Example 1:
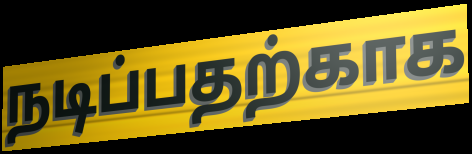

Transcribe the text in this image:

நடிப்பதற்காக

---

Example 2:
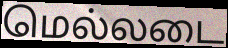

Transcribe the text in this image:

மெல்லடை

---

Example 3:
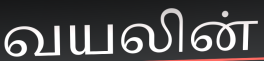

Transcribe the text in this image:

வயலின்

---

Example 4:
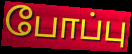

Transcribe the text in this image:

போப்பு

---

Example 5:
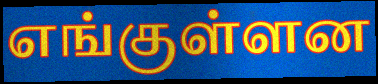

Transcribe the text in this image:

எங்குள்ளன